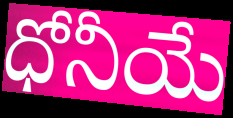
ధోనీయే